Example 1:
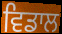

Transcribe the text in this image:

ਵਿਡਾਲ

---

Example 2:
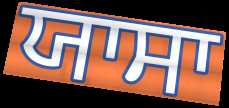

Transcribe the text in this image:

ਯਾਸਾ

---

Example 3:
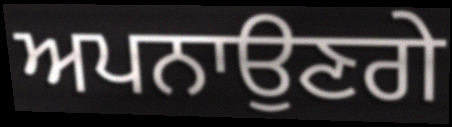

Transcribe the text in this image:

ਅਪਨਾਉਣਗੇ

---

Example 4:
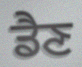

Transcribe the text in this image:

ਡੈਣ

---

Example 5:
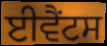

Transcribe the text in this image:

ਈਵੈਂਟਸ